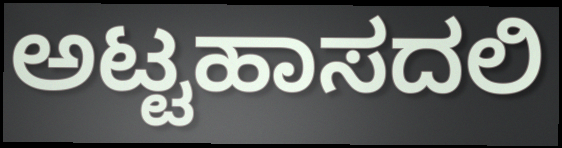
ಅಟ್ಟಹಾಸದಲಿ